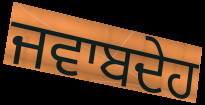
ਜਵਾਬਦੇਹ